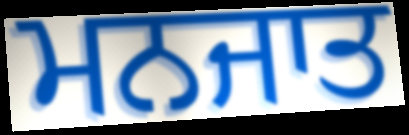
ਮਨਜਾਤ